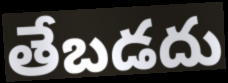
తేబడదు